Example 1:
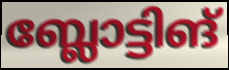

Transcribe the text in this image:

ബ്ലോട്ടിങ്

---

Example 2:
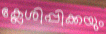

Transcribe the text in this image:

ക്ലേശിപ്പിക്കയും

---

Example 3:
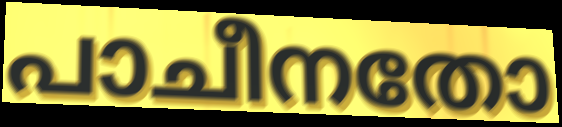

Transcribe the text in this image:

പാചീനതോ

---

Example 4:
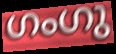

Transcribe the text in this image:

ഗംഗു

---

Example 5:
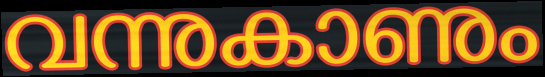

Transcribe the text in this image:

വന്നുകാണും